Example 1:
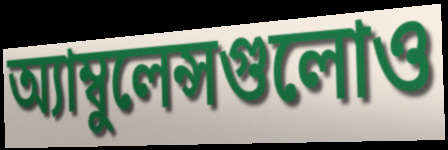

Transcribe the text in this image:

অ্যাম্বুলেন্সগুলোও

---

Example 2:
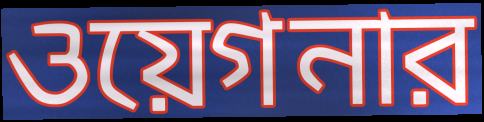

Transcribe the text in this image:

ওয়েগনার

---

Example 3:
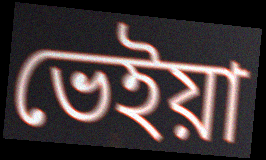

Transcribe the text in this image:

ভেইয়া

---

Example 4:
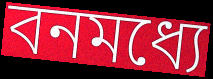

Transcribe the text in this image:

বনমধ্যে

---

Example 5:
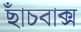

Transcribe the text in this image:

ছাঁচবাক্স